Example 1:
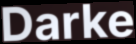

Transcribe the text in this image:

Darke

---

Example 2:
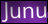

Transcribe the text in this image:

Junu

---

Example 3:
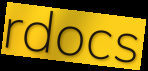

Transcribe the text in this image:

rdocs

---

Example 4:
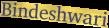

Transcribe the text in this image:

Bindeshwari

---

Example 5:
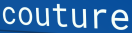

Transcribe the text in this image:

couture